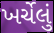
ખર્ચેલું